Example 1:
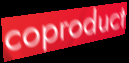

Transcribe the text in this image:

coproduct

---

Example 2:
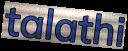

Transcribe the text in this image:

talathi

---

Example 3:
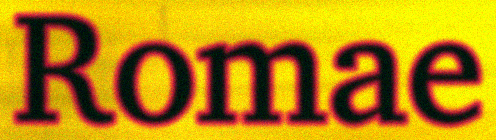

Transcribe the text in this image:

Romae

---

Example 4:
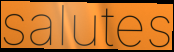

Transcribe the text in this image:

salutes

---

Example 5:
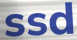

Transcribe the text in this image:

ssd